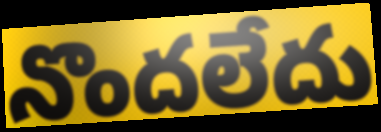
నొందలేదు